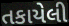
તકાયેલી